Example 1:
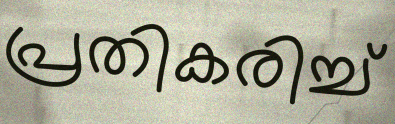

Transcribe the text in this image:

പ്രതികരിച്ച്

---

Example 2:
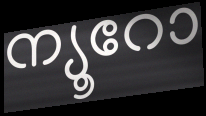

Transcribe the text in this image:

ന്യൂറോ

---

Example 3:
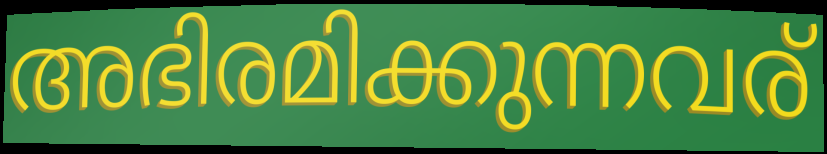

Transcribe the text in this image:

അഭിരമിക്കുന്നവര്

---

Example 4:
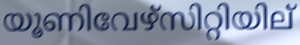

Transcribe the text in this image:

യൂണിവേഴ്സിറ്റിയില്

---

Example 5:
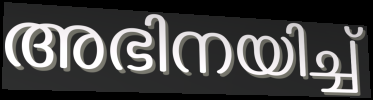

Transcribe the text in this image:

അഭിനയിച്ച്